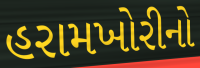
હરામખોરીનો